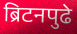
ब्रिटनपुढे